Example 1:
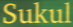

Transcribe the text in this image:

Sukul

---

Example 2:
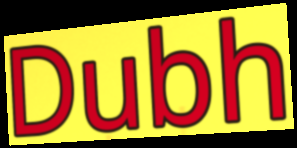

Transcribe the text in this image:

Dubh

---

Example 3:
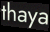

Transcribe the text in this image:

thaya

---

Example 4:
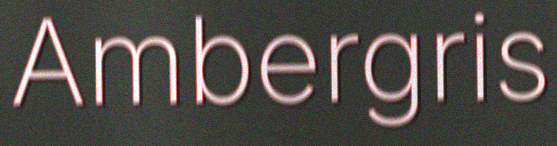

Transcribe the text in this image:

Ambergris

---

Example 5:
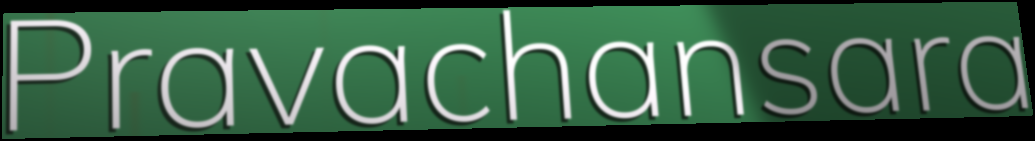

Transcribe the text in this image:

Pravachansara